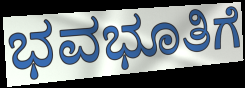
ಭವಭೂತಿಗೆ